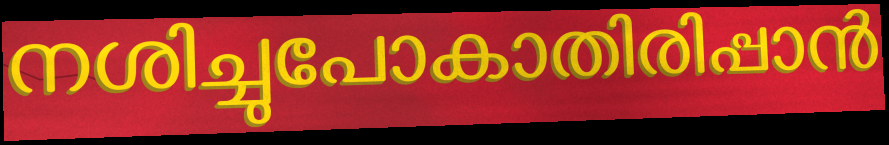
നശിച്ചുപോകാതിരിപ്പാൻ